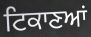
ਟਿਕਾਣਆਂ